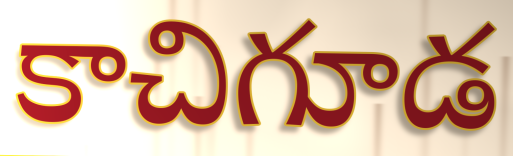
కాచిగూడ